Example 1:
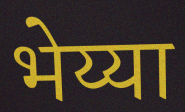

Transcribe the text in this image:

भेय्या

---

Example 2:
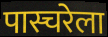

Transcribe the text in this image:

पास्चरेला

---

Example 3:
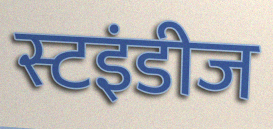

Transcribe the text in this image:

स्टइंडीज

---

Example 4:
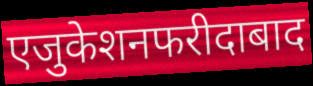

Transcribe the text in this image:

एजुकेशनफरीदाबाद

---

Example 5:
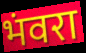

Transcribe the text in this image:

भंवरा